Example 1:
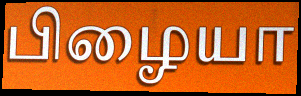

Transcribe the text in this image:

பிழையா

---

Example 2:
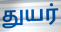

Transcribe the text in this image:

துயர்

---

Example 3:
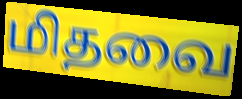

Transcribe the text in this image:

மிதவை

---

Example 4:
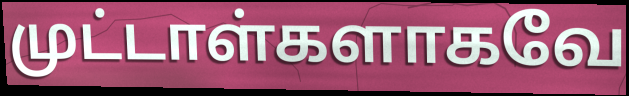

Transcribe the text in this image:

முட்டாள்களாகவே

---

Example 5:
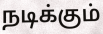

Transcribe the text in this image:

நடிக்கும்